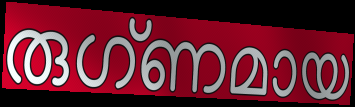
രുഗ്ണമായ